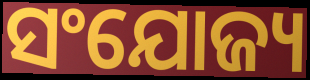
ସଂଯୋଜ୍ୟ